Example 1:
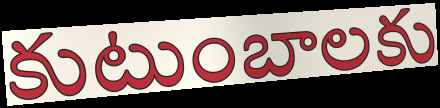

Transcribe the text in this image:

కుటుంబాలకు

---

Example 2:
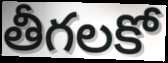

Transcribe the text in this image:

తీగలకో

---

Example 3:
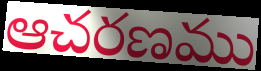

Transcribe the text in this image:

ఆచరణము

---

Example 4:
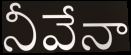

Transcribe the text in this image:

నీవేనా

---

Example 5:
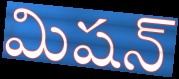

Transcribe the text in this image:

మిషన్